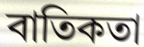
বাতিকতা